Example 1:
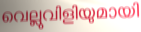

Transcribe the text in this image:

വെല്ലുവിളിയുമായി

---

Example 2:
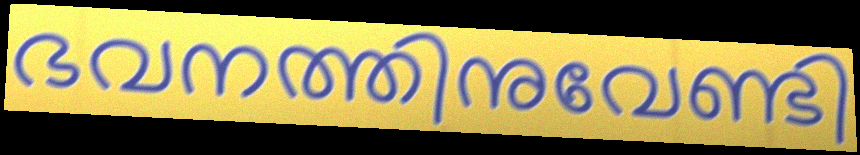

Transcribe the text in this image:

ഭവനത്തിനുവേണ്ടി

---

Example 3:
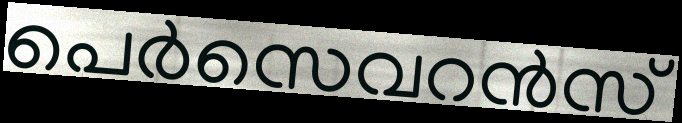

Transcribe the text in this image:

പെർസെവറൻസ്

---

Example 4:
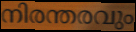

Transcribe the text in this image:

നിരന്തരവും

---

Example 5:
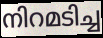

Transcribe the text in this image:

നിറമടിച്ച